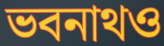
ভবনাথও